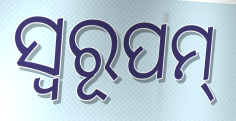
ସ୍ଵରୂପମ୍